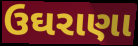
ઉઘરાણા